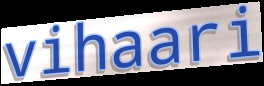
vihaari